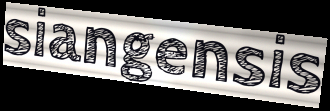
siangensis